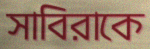
সাবিরাকে